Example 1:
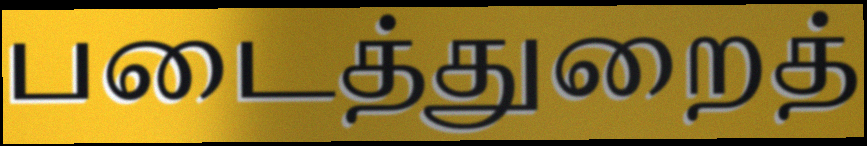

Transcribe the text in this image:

படைத்துறைத்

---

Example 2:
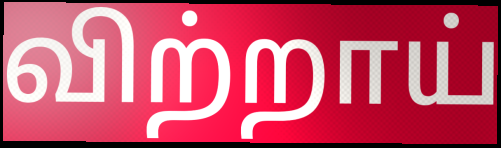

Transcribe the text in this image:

விற்றாய்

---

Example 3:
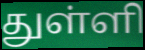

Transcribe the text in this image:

துள்ளி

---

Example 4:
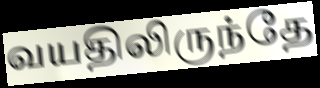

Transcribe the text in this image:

வயதிலிருந்தே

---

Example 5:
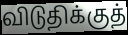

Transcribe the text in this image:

விடுதிக்குத்